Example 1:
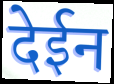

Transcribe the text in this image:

देईन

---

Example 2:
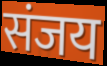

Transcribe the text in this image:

संजय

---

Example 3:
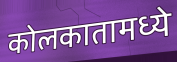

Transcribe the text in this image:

कोलकातामध्ये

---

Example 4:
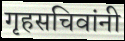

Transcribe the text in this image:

गृहसचिवांनी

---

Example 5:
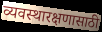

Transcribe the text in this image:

व्यवस्थारक्षणासाठी